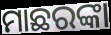
ମାଛରଙ୍କା